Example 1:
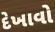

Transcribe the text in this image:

દેખાવો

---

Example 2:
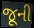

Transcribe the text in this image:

જૂની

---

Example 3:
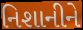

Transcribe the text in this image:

નિશાનીને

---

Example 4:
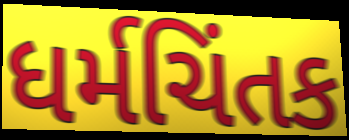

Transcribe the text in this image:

ધર્મચિંતક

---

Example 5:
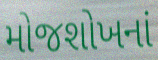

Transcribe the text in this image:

મોજશોખનાં